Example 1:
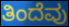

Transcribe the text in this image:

ತಿಂದೆವು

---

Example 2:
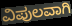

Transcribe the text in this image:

ವಿಪುಲವಾಗಿ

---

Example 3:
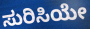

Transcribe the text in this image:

ಸುರಿಸಿಯೇ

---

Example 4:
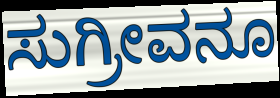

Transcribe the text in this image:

ಸುಗ್ರೀವನೂ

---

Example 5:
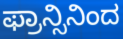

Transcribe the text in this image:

ಫ್ರಾನ್ಸಿನಿಂದ